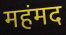
महंमद